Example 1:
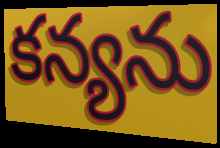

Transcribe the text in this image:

కన్యను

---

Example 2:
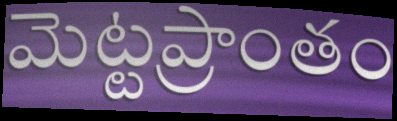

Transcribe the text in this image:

మెట్టప్రాంతం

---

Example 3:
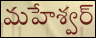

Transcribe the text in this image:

మహేశ్వర్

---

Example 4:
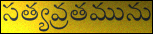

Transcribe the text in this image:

సత్యవ్రతమును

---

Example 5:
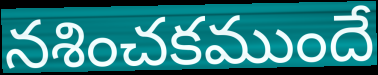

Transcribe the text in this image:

నశించకముందే